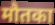
मौतका